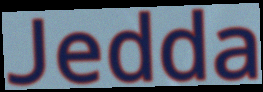
Jedda